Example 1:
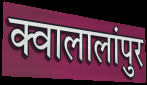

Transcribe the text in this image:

क्वालालांपुर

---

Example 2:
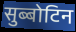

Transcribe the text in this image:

सुब्बोटिन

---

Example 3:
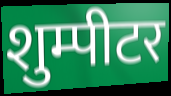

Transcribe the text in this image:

शुम्पीटर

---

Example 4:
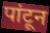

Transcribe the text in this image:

पांटून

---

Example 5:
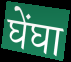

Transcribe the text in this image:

घेंघा